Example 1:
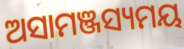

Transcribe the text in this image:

ଅସାମଞ୍ଜସ୍ୟମୟ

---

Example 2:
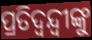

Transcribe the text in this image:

ପ୍ରତିଦ୍ବନ୍ଦ୍ବୀଙ୍କୁ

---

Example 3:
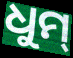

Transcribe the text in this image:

ଧୁମ୍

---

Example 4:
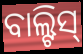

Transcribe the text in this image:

ବାଲ୍ଟିସ୍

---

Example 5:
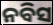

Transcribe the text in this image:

ନବିସ